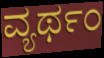
ವ್ಯರ್ಥಂ